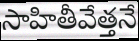
సాహితీవేత్తనే